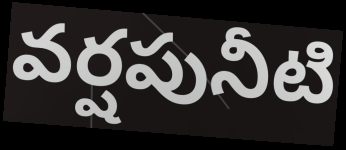
వర్షపునీటి